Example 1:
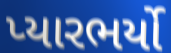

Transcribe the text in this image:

પ્યારભર્યો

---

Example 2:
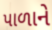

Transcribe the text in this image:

પાળાને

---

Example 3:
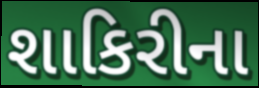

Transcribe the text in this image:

શાકિરીના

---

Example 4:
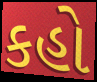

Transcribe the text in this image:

કહો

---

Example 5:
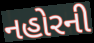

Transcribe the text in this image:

નહોરની